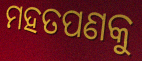
ମହତପଣକୁ